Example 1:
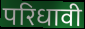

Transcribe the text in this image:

परिधावी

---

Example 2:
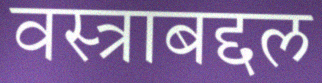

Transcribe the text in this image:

वस्त्राबद्दल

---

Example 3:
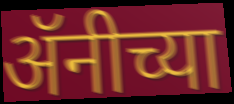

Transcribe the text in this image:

ॲनीच्या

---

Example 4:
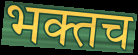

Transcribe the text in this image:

भक्तच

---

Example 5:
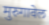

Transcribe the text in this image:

मुरुगावेल